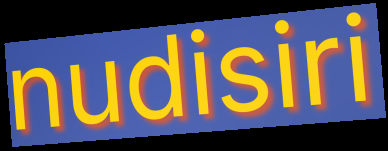
nudisiri